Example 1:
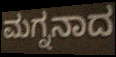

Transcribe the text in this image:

ಮಗ್ನನಾದ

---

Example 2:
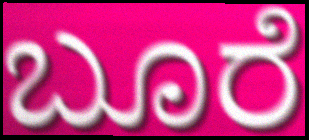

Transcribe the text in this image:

ಬೂರೆ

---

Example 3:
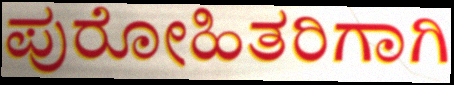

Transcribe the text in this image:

ಪುರೋಹಿತರಿಗಾಗಿ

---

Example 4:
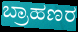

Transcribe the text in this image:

ಬ್ರಾಹಣರ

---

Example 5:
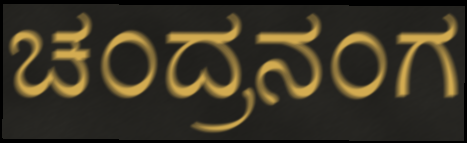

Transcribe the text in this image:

ಚಂದ್ರನಂಗ